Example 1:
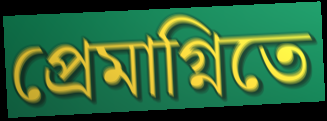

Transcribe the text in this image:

প্রেমাগ্নিতে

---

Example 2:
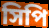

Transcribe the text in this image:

সিপি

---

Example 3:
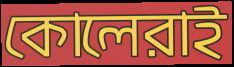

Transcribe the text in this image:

কোলেরাই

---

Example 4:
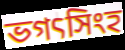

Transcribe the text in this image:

ভগৎসিংহ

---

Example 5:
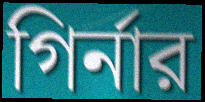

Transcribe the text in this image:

গির্নার